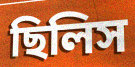
ছিলিস